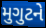
મુગુટને